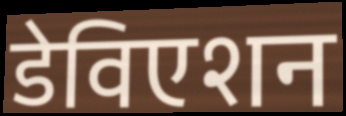
डेविएशन